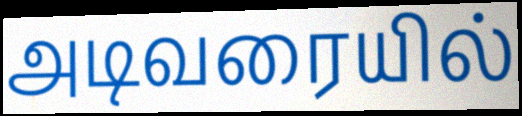
அடிவரையில்